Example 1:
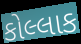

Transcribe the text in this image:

કોલ્લાક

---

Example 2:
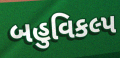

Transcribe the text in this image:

બહુવિકલ્પ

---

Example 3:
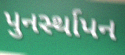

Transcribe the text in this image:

પુનર્સ્થાપન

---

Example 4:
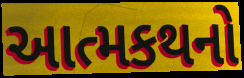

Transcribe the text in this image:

આત્મકથનો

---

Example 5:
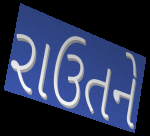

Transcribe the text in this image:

રાઉતને